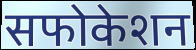
सफोकेशन